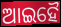
ଆଇହୈ